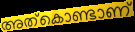
അത്കൊണ്ടാണ്